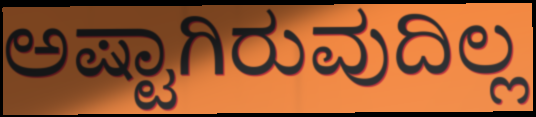
ಅಷ್ಟಾಗಿರುವುದಿಲ್ಲ